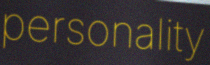
personality